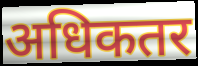
अधिकतर